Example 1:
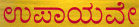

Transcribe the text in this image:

ಉಪಾಯವೇ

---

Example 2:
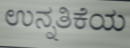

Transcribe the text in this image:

ಉನ್ನತಿಕೆಯ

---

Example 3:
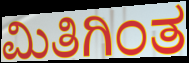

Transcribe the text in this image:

ಮಿತಿಗಿಂತ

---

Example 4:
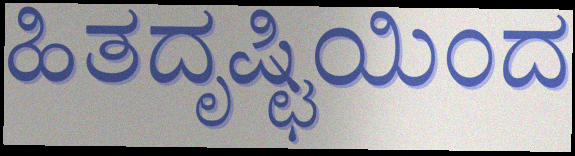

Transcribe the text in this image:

ಹಿತದೃಷ್ಟಿಯಿಂದ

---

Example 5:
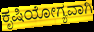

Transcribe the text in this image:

ಕೃಷಿಯೋಗ್ಯವಾಗಿ